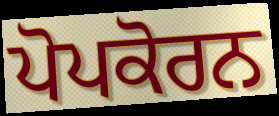
ਪੋਪਕੋਰਨ